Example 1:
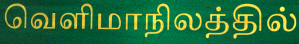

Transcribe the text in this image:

வெளிமாநிலத்தில்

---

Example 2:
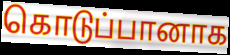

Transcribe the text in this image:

கொடுப்பானாக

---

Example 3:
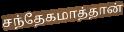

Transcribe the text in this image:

சந்தேகமாத்தான்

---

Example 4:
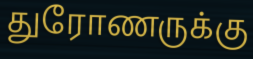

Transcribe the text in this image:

துரோணருக்கு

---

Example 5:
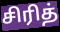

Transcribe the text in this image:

சிரித்